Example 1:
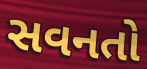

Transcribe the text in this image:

સવનતો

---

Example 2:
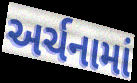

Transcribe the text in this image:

અર્ચનામાં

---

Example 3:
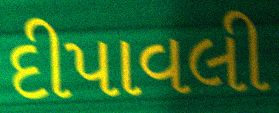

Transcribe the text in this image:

દીપાવલી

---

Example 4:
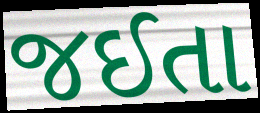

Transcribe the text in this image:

જઈતા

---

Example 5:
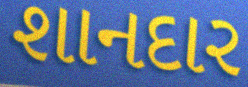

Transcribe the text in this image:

શાનદાર